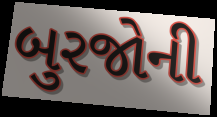
બુરજોની